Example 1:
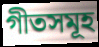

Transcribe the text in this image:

গীতসমূহ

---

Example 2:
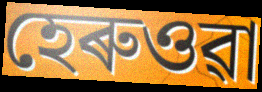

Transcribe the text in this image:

হেৰুওৱা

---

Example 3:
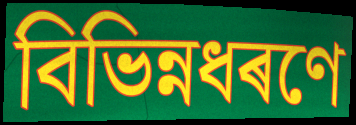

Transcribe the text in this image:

বিভিন্নধৰণে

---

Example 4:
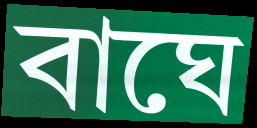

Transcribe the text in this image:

বাঘে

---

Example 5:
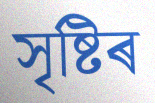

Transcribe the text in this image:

সৃষ্টিৰ